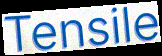
Tensile